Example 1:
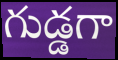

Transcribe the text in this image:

గుడ్డగా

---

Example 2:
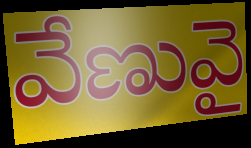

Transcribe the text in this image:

వేణువై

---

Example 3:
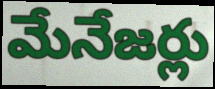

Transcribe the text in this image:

మేనేజర్లు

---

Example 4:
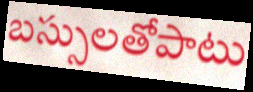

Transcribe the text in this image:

బస్సులతోపాటు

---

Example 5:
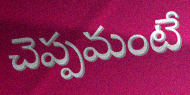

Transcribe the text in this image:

చెప్పమంటే